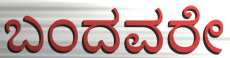
ಬಂದವರೇ